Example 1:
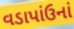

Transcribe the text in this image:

વડાપાંઉનાં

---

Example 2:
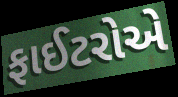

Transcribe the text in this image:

ફાઈટરોએ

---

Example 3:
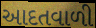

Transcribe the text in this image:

આદતવાળી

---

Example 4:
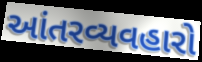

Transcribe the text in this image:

આંતરવ્યવહારો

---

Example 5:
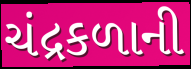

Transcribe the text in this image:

ચંદ્રકળાની